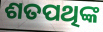
ଶତପଥିଙ୍କ